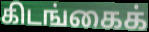
கிடங்கைக்